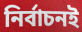
নির্বাচনই